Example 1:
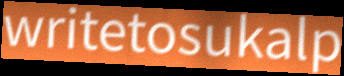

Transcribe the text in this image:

writetosukalp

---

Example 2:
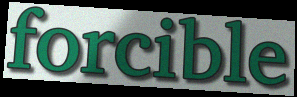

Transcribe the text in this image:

forcible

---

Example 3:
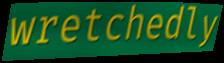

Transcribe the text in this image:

wretchedly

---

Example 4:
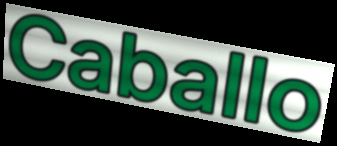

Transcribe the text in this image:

Caballo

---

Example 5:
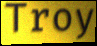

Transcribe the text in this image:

Troy